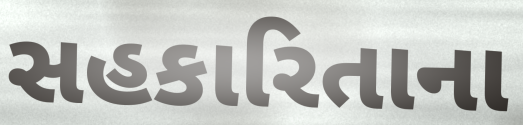
સહકારિતાના